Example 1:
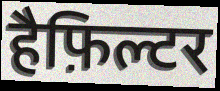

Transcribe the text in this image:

हैफ़िल्टर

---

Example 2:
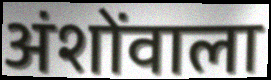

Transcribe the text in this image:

अंशोंवाला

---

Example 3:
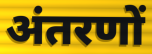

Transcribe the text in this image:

अंतरणों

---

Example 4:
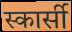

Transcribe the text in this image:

स्कार्सी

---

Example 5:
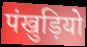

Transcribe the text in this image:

पंखुड़ियो